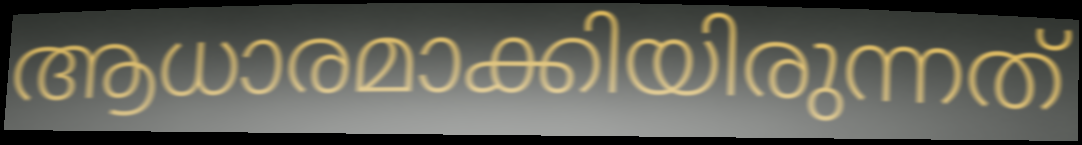
ആധാരമാക്കിയിരുന്നത്